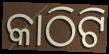
କାଠିଟି